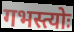
गभस्त्योः